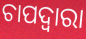
ଚାପଦ୍ବାରା